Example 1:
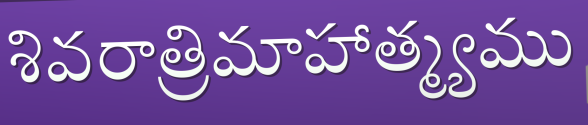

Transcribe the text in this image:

శివరాత్రిమాహాత్మ్యము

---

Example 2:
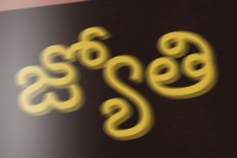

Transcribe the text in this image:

జ్యోతి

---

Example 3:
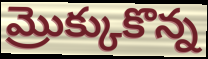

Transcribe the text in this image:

మ్రొక్కుకొన్న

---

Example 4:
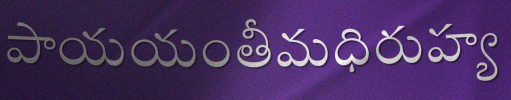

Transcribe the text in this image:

పాయయంతీమధిరుహ్య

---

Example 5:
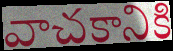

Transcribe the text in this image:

వాచకానికి